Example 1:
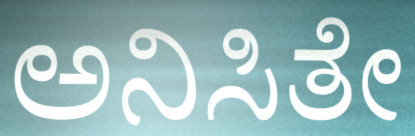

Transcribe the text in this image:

ಅನಿಸಿತೇ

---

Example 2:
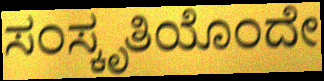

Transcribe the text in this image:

ಸಂಸ್ಕೃತಿಯೊಂದೇ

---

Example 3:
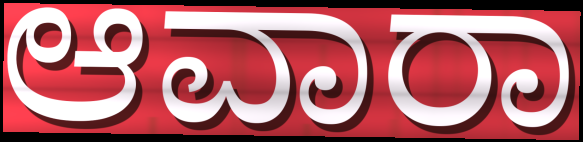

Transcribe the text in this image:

ಆವಾರಾ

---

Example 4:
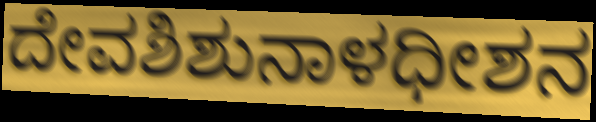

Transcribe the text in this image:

ದೇವಶಿಶುನಾಳಧೀಶನ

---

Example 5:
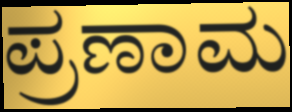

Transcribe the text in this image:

ಪ್ರಣಾಮ